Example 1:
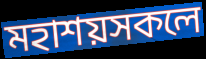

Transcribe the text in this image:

মহাশয়সকলে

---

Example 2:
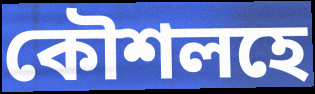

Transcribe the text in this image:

কৌশলহে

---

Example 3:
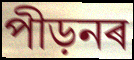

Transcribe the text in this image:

পীড়নৰ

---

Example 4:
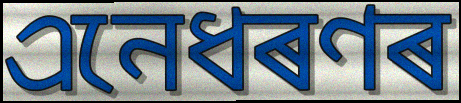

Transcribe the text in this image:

এনেধৰণৰ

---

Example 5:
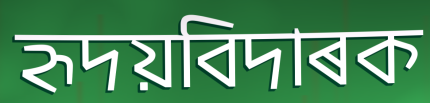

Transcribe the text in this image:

হৃদয়বিদাৰক